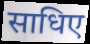
साधिए